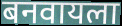
बनवायला